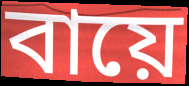
বায়ে